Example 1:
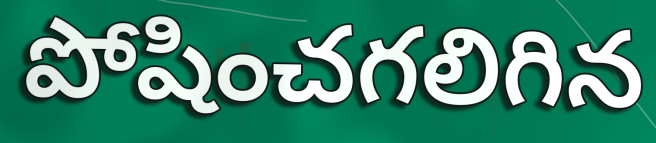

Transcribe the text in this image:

పోషించగలిగిన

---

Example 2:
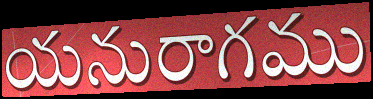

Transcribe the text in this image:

యనురాగము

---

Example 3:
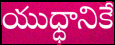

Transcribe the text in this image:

యుధ్ధానికే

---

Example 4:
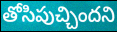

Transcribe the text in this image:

తోసిపుచ్చిందని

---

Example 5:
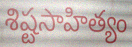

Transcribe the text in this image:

శిష్టసాహిత్యం